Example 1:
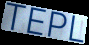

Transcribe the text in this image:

TEPL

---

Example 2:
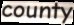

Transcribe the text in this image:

county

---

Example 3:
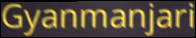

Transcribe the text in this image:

Gyanmanjari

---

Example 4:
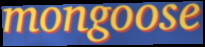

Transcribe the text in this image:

mongoose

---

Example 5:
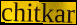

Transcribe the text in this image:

chitkar